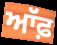
ਆੱਫ਼